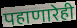
पहाणारेही